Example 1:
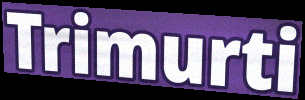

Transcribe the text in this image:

Trimurti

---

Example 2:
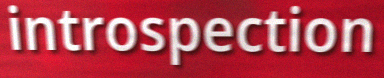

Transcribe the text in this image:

introspection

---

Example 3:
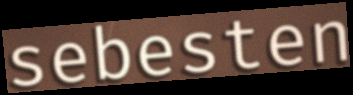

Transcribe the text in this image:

sebesten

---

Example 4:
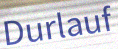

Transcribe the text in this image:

Durlauf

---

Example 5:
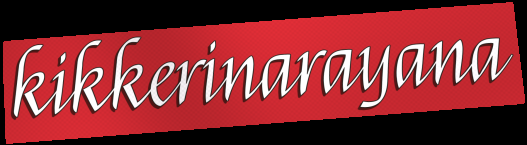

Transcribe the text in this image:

kikkerinarayana